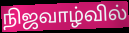
நிஜவாழ்வில்